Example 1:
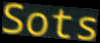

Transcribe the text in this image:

Sots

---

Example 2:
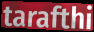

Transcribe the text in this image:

tarafthi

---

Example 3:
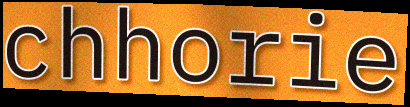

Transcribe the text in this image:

chhorie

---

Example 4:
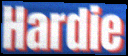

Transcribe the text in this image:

Hardie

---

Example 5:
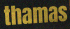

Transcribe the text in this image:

thamas